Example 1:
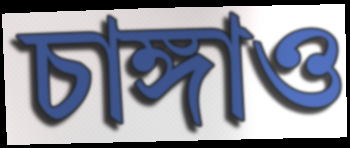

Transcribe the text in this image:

চাঙ্গাও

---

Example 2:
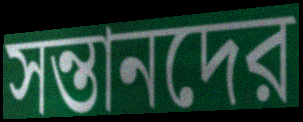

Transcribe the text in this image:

সন্তানদের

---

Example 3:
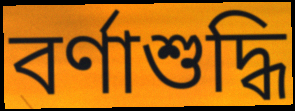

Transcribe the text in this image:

বর্ণাশুদ্ধি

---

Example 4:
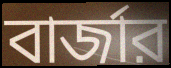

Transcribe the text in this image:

বার্জার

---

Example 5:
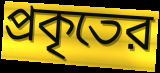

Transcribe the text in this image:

প্রকৃতের